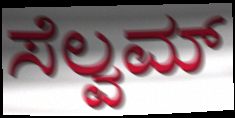
ಸೆಲ್ವಮ್